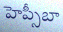
హెప్సీబా